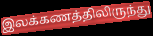
இலக்கணத்திலிருந்து